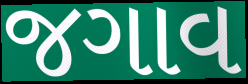
જગાવ